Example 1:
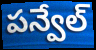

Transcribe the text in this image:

పన్వేల్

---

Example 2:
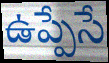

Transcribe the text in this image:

ఉప్పేసే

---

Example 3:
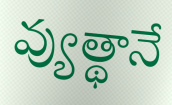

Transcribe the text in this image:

వ్యుత్థానే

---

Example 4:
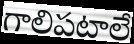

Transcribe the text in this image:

గాలిపటాలే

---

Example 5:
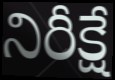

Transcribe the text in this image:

నిరీక్షే